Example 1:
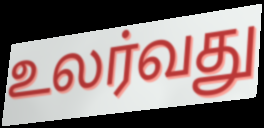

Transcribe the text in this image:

உலர்வது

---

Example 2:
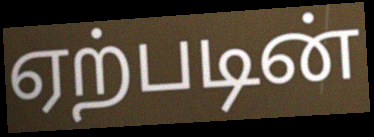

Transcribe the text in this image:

ஏற்படின்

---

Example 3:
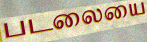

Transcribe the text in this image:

படலையை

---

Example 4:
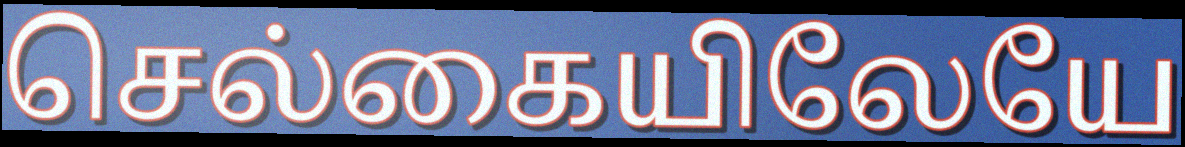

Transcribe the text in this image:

செல்கையிலேயே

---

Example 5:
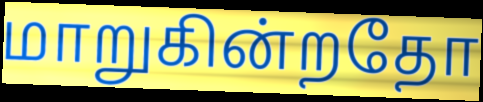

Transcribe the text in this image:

மாறுகின்றதோ